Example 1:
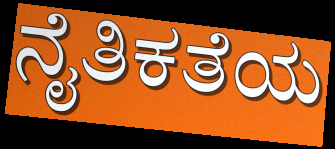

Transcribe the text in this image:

ನೈತಿಕತೆಯ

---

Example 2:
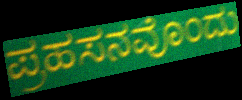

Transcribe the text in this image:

ಪ್ರಹಸನವೊಂದು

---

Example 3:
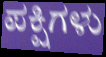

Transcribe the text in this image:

ಪಕ್ಷಿಗಳು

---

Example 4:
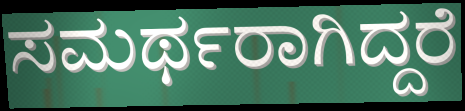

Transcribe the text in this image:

ಸಮರ್ಥರಾಗಿದ್ದರೆ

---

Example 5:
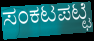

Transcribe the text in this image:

ಸಂಕಟಪಟ್ಟೆ